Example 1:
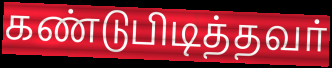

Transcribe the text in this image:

கண்டுபிடித்தவர்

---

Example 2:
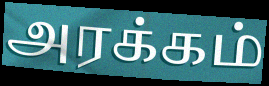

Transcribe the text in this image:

அரக்கம்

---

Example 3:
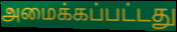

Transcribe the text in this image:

அமைக்கப்பட்டது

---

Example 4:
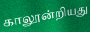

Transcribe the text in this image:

காலூன்றியது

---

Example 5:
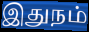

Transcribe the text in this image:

இதுநம்